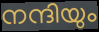
നന്ദിയും